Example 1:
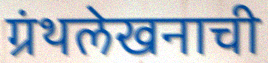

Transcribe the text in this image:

ग्रंथलेखनाची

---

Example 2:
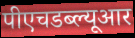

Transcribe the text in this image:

पीएचडब्ल्यूआर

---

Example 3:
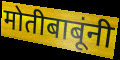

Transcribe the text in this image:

मोतीबाबूंनी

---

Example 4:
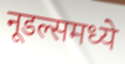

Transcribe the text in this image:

नूडल्समध्ये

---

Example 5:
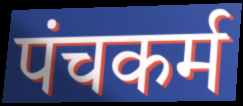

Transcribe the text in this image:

पंचकर्म